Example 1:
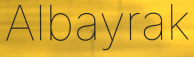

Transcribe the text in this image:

Albayrak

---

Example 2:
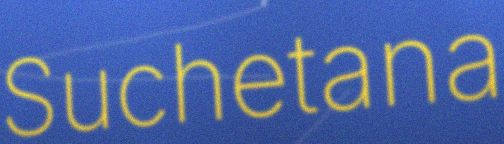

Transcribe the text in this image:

Suchetana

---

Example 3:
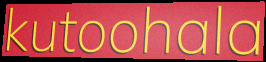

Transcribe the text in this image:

kutoohala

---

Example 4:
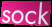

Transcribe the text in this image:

sock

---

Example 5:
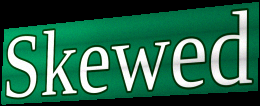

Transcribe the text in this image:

Skewed